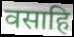
वसाहि